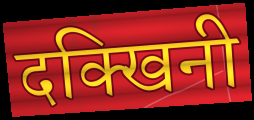
दक्खिनी